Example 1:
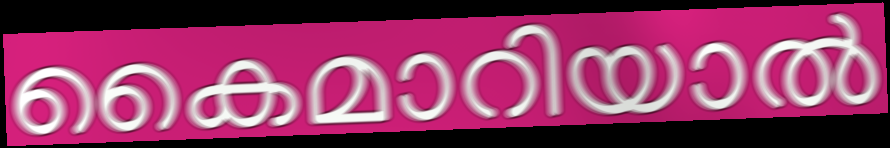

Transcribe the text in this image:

കൈമാറിയാൽ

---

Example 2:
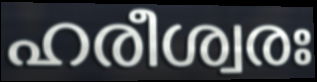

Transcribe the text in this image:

ഹരീശ്വരഃ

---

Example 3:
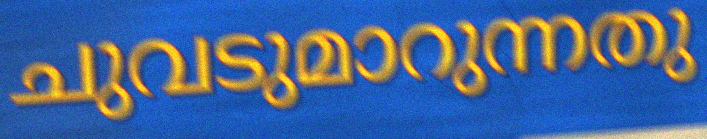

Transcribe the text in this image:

ചുവടുമാറുന്നതു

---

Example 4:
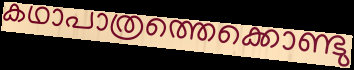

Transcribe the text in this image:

കഥാപാത്രത്തെക്കൊണ്ടു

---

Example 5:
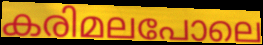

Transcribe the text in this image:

കരിമലപോലെ